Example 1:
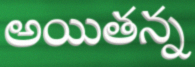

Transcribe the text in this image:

అయితన్న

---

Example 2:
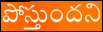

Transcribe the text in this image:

పోస్తుందని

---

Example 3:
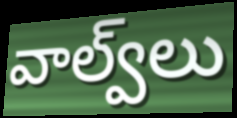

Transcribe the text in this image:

వాల్వ్‌లు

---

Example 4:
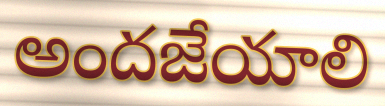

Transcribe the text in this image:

అందజేయాలి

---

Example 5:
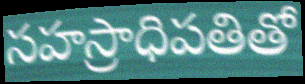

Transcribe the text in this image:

సహస్రాధిపతితో